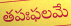
తపఃఫలమే